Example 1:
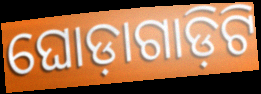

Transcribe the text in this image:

ଘୋଡ଼ାଗାଡ଼ିଟି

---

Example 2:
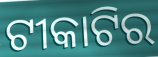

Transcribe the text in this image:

ଟୀକାଟିର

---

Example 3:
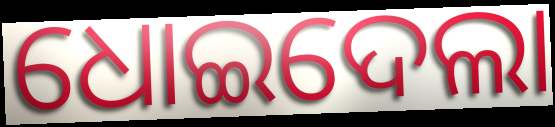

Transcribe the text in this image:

ଧୋଇଦେଲା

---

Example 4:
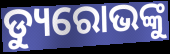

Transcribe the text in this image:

ଡ୍ୟୁରୋଭଙ୍କୁ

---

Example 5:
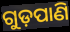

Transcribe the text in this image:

ଗୁଡ଼ପାଣି